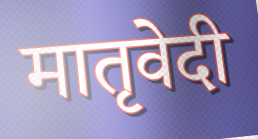
मातृवेदी